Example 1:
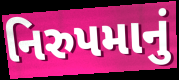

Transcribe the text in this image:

નિરુપમાનું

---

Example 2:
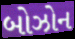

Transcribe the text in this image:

બોઝોન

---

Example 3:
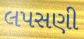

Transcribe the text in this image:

લપસણી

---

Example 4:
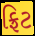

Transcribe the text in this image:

ફ્રિટ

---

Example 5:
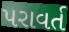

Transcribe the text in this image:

પરાવર્ત